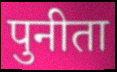
पुनीता